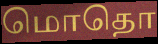
மொதொ